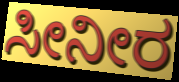
ಸೀನೀರ